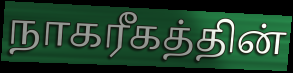
நாகரீகத்தின்